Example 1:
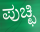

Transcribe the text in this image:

ಪುಚ್ಛಿ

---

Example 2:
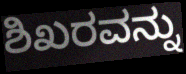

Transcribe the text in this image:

ಶಿಖರವನ್ನು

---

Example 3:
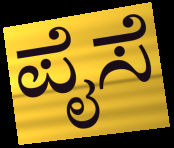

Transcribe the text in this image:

ಪೈಸೆ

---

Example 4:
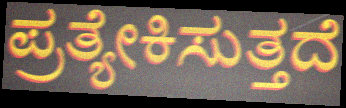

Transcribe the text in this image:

ಪ್ರತ್ಯೇಕಿಸುತ್ತದೆ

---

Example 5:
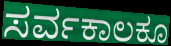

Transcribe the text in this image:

ಸರ್ವಕಾಲಕೂ